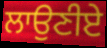
ਲਾਉਣੀਏ